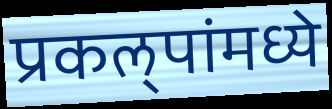
प्रकल्पांमध्ये